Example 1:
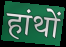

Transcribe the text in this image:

हांथों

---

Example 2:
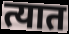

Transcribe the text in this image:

त्यात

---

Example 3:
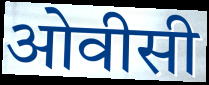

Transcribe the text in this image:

ओवीसी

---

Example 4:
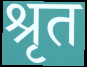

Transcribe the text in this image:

श्रृत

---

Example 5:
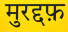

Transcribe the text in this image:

मुरद्दफ़